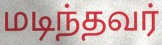
மடிந்தவர்